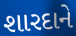
શારદાને